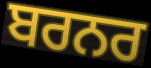
ਬਰਨਰ